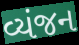
વ્યંજન